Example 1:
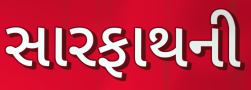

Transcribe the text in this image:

સારફાથની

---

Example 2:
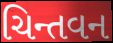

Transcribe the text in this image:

ચિન્તવન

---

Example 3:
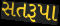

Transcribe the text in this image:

સતરૂપા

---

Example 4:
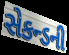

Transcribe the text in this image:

સેકન્ડની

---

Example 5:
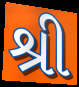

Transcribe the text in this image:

શ્રી